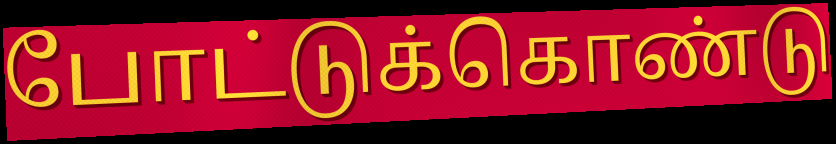
போட்டுக்கொண்டு